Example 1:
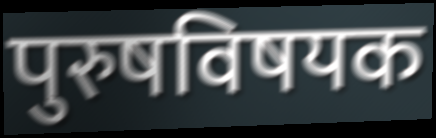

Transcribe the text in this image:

पुरुषविषयक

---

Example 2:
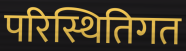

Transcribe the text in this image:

परिस्थितिगत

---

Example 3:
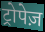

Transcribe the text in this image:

ट्रोपेज़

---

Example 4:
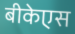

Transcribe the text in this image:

बीकेएस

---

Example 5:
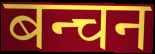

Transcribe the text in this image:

बन्चन